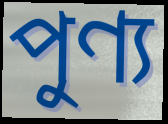
পুণ্য